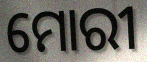
ମୋରୀ